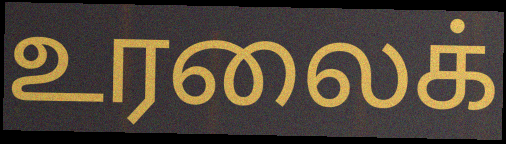
உரலைக்